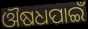
ଔଷଧପାଇଁ